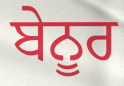
ਬੇਨੂਰ